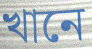
খানে